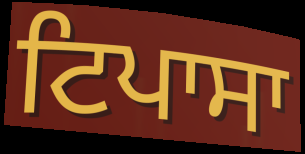
ਟਿਪਾਸਾ